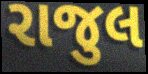
રાજુલ